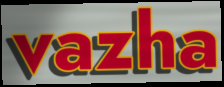
vazha